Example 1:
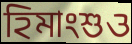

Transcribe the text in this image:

হিমাংশুও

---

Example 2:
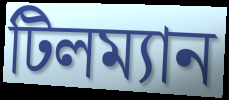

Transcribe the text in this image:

টিলম্যান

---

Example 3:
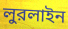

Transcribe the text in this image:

লুরলাইন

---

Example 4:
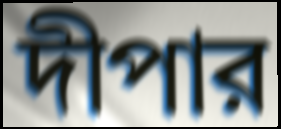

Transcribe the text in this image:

দীপার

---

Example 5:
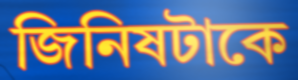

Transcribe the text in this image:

জিনিষটাকে